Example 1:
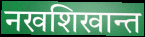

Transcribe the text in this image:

नखशिखान्त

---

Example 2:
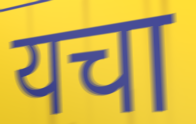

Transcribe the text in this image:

यचा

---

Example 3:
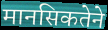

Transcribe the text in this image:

मानसिकतेने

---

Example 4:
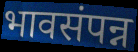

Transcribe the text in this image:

भावसंपन्न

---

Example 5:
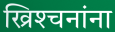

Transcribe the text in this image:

ख्रिश्‍चनांना